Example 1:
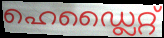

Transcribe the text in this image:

ഹെഡ്ലൈറ്റ്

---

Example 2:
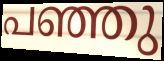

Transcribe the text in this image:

പഞ്ഞു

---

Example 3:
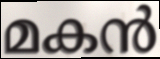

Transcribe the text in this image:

മകൻ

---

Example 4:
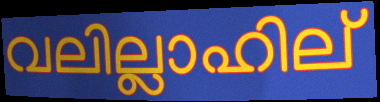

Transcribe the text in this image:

വലില്ലാഹില്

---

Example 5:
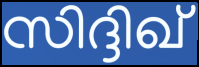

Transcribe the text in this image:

സിദ്ദിഖ്